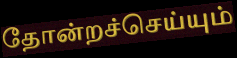
தோன்றச்செய்யும்